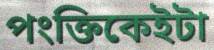
পংক্তিকেইটা